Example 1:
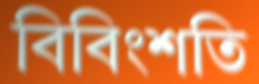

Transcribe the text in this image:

বিবিংশতি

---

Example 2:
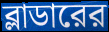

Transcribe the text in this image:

ব্লাডারের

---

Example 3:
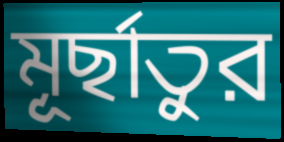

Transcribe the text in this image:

মূর্ছাতুর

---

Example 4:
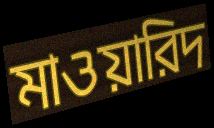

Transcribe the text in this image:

মাওয়ারিদ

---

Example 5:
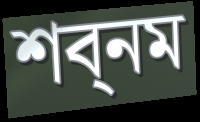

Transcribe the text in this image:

শব্নম